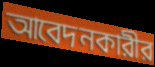
আবেদনকারীর